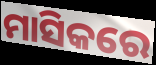
ମାସିକରେ